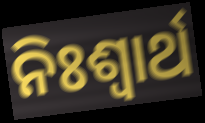
ନିଃଶ୍ୱାର୍ଥ